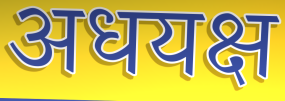
अधयक्ष